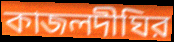
কাজলদীঘির